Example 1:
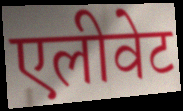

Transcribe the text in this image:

एलीवेट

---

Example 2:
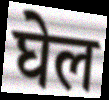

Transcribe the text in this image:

घेल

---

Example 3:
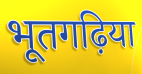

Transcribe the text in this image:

भूतगढ़िया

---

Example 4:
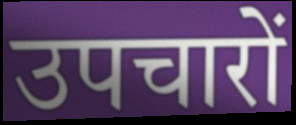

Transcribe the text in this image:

उपचारों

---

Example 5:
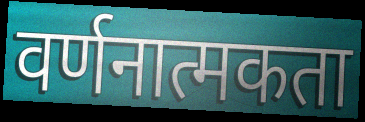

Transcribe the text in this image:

वर्णनात्मकता